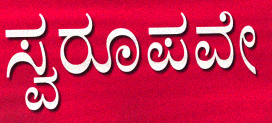
ಸ್ವರೂಪವೇ